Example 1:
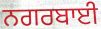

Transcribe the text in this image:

ਨਗਰਬਾਈ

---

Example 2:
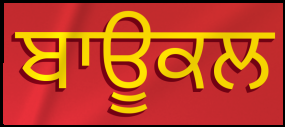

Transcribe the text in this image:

ਬਾਊਕਲ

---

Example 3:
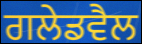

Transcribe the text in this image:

ਗਲੇਡਵੈਲ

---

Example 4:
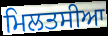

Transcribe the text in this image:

ਮਿਲਤਸੀਆ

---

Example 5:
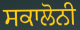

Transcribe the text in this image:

ਸਕਾਲੋਨੀ